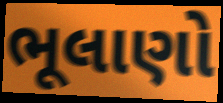
ભૂલાણો